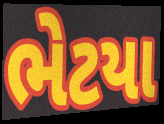
ભેટયા